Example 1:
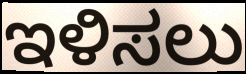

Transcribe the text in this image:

ಇಳಿಸಲು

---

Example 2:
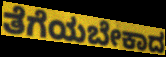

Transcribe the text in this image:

ತೆಗೆಯಬೇಕಾದ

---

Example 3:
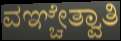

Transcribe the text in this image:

ವಞ್ಚೇತ್ವಾತಿ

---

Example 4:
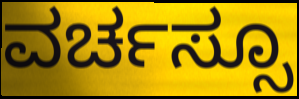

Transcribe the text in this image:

ವರ್ಚಸ್ಸೂ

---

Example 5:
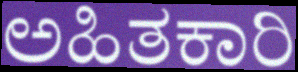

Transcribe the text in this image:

ಅಹಿತಕಾರಿ